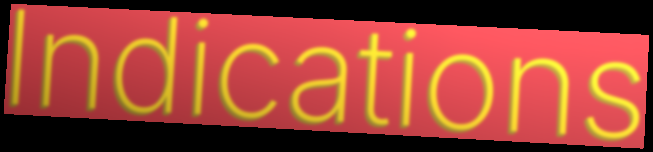
Indications